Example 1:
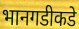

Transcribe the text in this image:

भानगडीकडे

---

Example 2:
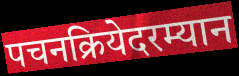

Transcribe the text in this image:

पचनक्रियेदरम्यान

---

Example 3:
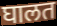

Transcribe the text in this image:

घालत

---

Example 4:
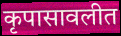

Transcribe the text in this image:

कृपासावलीत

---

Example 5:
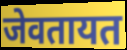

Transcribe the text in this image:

जेवतायत